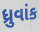
ધ્રુવાંક